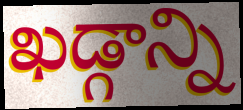
ఖడ్గాన్ని